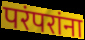
परंपरांना